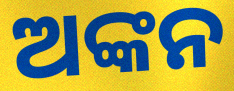
ଅଙ୍କନ